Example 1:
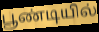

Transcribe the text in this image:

பூண்டியில்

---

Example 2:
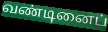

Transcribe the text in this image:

வண்டினைப்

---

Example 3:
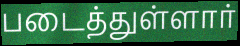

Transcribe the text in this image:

படைத்துள்ளார்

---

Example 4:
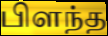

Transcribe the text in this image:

பிளந்த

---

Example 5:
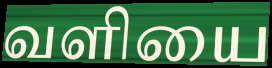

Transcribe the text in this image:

வளியை